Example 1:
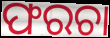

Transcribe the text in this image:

ଫରଚା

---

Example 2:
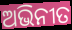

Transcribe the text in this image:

ଅଭିନୀତ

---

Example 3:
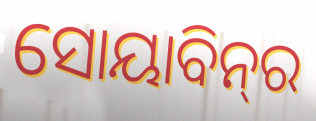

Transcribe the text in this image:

ସୋୟାବିନ୍‌ର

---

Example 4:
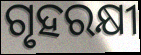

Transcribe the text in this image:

ଗୃହରକ୍ଷୀ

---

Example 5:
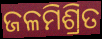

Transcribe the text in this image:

ଜଳମିଶ୍ରିତ